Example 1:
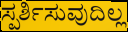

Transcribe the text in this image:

ಸ್ಪರ್ಶಿಸುವುದಿಲ್ಲ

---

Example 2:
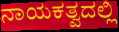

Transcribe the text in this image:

ನಾಯಕತ್ವದಲ್ಲಿ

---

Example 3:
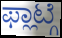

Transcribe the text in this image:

ಫ್ಲಾಟ್ಗೆ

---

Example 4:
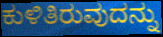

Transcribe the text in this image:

ಕುಳಿತಿರುವುದನ್ನು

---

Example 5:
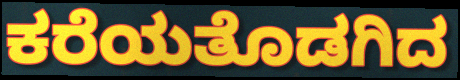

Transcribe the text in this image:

ಕರೆಯತೊಡಗಿದ